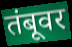
तंबूवर